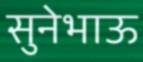
सुनेभाऊ